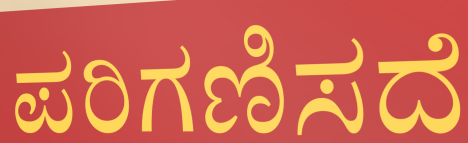
ಪರಿಗಣಿಸದೆ